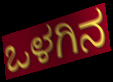
ಒಳಗಿನ